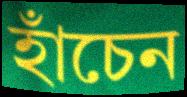
হাঁচেন